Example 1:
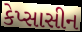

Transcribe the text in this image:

કેપ્સાસીન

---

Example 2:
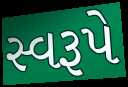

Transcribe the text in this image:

સ્વરૂપે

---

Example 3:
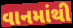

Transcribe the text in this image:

વાનમાંથી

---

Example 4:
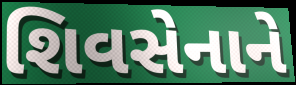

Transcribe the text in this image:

શિવસેનાને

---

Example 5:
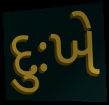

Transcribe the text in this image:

દુઃખે